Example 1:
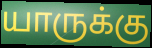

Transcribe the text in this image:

யாருக்கு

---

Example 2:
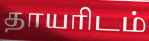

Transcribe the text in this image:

தாயரிடம்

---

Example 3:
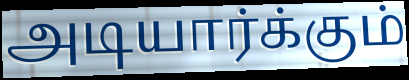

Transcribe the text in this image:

அடியார்க்கும்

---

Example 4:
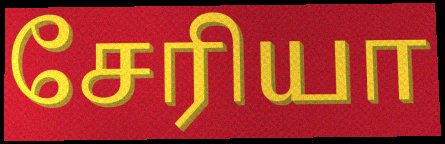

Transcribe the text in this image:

சேரியா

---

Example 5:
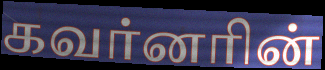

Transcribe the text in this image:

கவர்னரின்